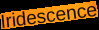
Iridescence